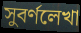
সুবর্ণলেখা